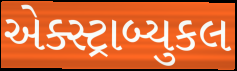
એક્સ્ટ્રાબ્યુકલ